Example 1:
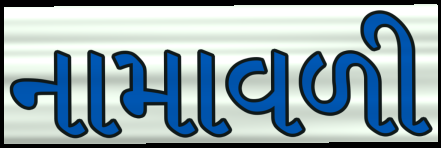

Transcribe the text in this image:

નામાવળી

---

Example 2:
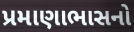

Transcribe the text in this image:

પ્રમાણાભાસનો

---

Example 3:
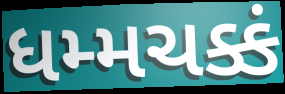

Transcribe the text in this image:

ધમ્મચક્કં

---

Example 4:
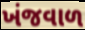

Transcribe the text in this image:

ખંજવાળ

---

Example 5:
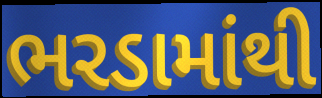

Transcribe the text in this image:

ભરડામાંથી